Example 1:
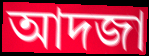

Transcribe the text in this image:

আদজা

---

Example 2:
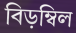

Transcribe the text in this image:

বিড়ম্বিল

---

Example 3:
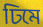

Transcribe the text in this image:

ঢিমে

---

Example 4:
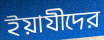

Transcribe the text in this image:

ইয়াযীদের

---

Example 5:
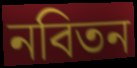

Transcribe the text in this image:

নবিতন